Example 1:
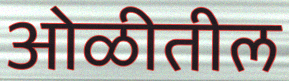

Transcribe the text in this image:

ओळीतील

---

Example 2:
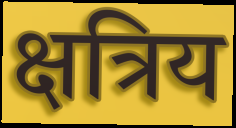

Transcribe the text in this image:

क्षत्रिय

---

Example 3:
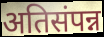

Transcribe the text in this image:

अतिसंपन्न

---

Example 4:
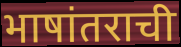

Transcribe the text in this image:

भाषांतराची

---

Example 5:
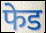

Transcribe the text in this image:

फेड